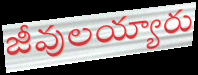
జీవులయ్యారు